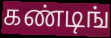
கண்டிங்